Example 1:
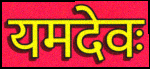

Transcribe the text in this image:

यमदेवः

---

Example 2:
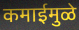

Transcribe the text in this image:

कमाईमुळे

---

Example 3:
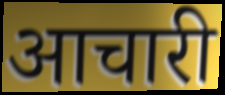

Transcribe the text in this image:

आचारी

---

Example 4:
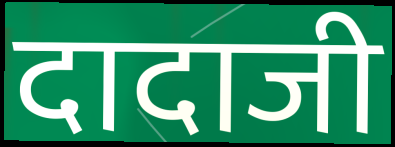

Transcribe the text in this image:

दादाजी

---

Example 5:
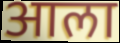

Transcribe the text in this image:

आला